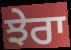
ਝੇਰਾ